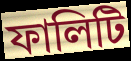
ফালিটি